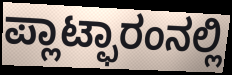
ಪ್ಲಾಟ್ಫಾರಂನಲ್ಲಿ